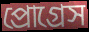
প্রোগ্রেস